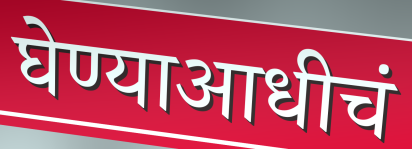
घेण्याआधीचं